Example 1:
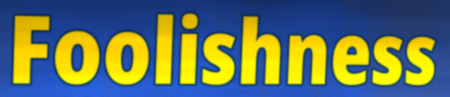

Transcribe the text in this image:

Foolishness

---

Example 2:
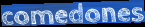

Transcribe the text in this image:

comedones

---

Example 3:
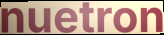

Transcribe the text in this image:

nuetron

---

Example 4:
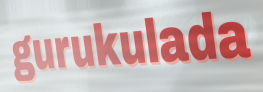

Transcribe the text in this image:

gurukulada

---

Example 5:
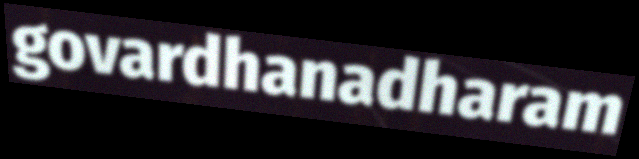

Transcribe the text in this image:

govardhanadharam